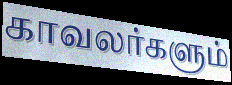
காவலர்களும்